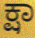
ಕ್ಷಾ